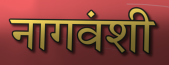
नागवंशी